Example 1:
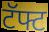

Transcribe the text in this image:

टॅफ्ट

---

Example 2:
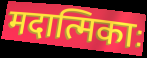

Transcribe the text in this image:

मदात्मिकाः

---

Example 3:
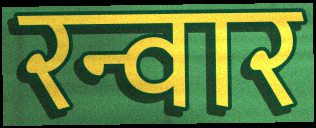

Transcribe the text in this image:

रन्वार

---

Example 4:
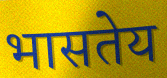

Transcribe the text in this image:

भासतेय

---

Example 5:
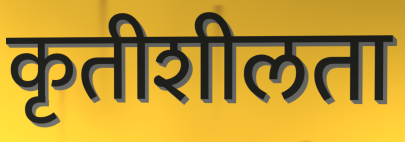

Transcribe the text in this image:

कृतीशीलता